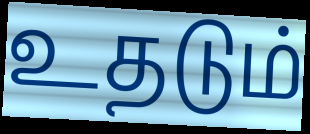
உதடும்